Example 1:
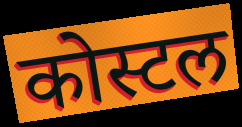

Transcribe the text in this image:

कोस्टल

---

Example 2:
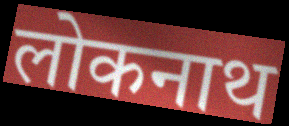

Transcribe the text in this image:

लोकनाथ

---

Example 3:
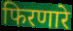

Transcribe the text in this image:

फिरणारे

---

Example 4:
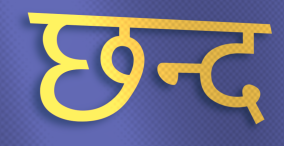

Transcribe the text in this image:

छन्द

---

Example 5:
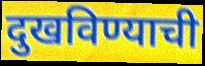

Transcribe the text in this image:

दुखविण्याची